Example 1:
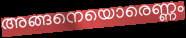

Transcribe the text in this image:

അങ്ങനെയൊരെണ്ണം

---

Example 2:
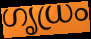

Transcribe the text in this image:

ഗൃധ്രം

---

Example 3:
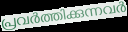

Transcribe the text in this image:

പ്രവർത്തിക്കുന്നവർ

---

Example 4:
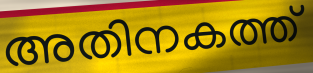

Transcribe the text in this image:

അതിനകത്ത്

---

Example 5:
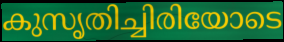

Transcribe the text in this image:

കുസൃതിച്ചിരിയോടെ